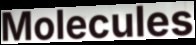
Molecules